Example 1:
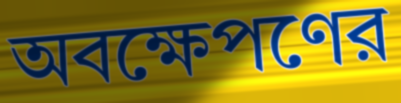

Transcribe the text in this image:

অবক্ষেপণের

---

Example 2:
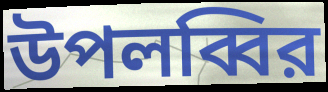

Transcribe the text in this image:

উপলব্বির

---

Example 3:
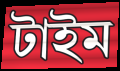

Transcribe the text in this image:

টাইম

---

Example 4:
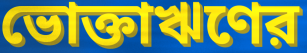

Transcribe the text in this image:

ভোক্তাঋণের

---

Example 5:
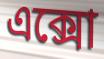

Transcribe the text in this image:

এক্সো